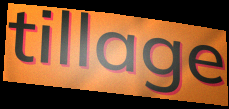
tillage